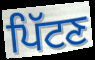
ਪਿੱਟਣ